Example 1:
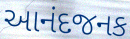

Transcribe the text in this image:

આનંદજનક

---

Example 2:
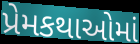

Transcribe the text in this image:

પ્રેમકથાઓમાં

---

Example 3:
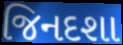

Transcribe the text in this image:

જિનદશા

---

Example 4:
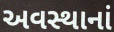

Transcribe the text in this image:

અવસ્થાનાં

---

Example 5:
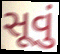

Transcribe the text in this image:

સૂવું